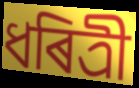
ধৰিত্ৰী